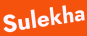
Sulekha